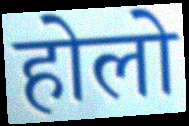
होलो